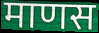
माणस